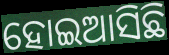
ହୋଇଆସିଛି